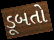
ડૂબતો